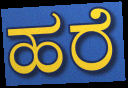
ಹರೆ